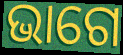
ଭାଗେ